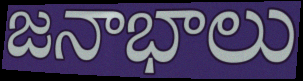
జనాభాలు